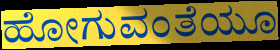
ಹೋಗುವಂತೆಯೂ